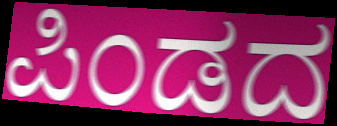
ಪಿಂಡದ